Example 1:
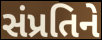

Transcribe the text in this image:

સંપ્રતિને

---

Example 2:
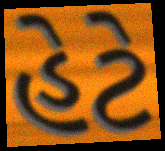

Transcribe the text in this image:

હેટે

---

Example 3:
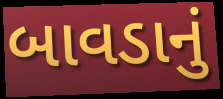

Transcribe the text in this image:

બાવડાનું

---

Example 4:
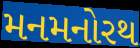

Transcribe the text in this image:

મનમનોરથ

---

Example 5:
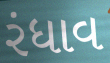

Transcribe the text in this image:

રંધાવ